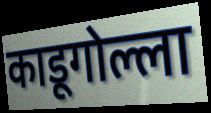
काडूगोल्ला